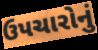
ઉપચારોનું